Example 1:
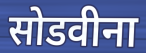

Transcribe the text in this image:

सोडवीना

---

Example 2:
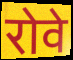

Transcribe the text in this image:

रोवे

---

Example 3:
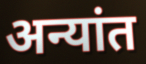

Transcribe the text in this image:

अन्यांत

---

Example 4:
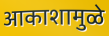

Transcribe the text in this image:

आकाशामुळे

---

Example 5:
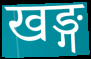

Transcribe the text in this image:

खङ्ग